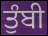
ਤੁੰਬੀ